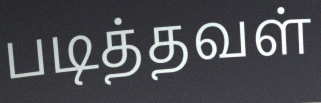
படித்தவள்